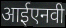
आईएनवी